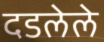
दडलेले